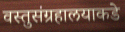
वस्तुसंग्रहालयाकडे